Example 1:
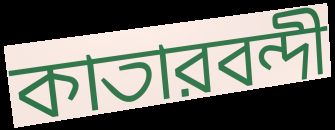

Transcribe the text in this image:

কাতারবন্দী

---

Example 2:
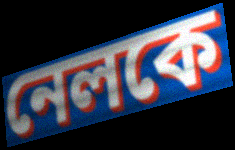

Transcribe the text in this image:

নেলকে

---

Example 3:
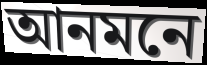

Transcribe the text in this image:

আনমনে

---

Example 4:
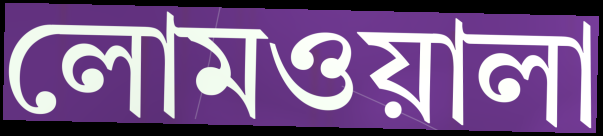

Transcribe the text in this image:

লোমওয়ালা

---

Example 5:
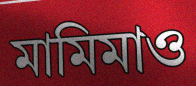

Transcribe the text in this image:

মামিমাও